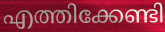
എത്തിക്കേണ്ടി